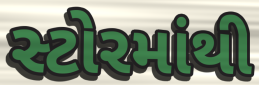
સ્ટોરમાંથી